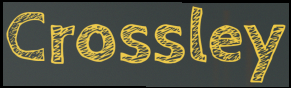
Crossley